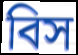
বিস